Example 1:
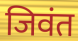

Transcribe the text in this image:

जिवंत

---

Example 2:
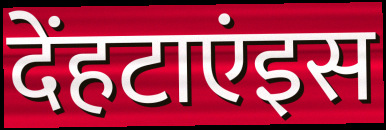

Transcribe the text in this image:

देंहटाएंइस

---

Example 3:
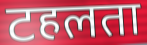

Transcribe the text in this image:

टहलता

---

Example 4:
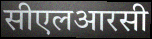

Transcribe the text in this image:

सीएलआरसी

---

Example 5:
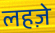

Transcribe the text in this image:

लहज़े